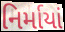
નિર્માયાં